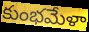
కుంభమేళా